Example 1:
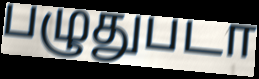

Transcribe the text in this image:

பழுதுபடா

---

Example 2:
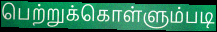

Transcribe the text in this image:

பெற்றுக்கொள்ளும்படி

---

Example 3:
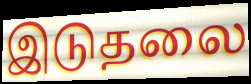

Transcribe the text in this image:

இடுதலை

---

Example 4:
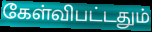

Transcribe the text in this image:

கேள்விபட்டதும்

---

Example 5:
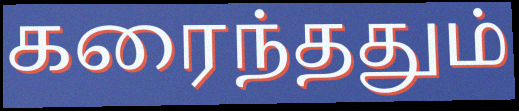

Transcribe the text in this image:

கரைந்ததும்